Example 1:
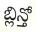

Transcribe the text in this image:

బ్లిన్తో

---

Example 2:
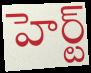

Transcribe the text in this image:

హెర్ట్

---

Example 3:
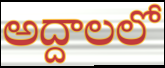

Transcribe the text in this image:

అద్దాలలో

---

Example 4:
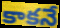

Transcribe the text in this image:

కాకనే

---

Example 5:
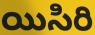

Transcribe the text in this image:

యిసిరి